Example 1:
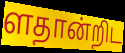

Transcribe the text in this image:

ளதான்றிட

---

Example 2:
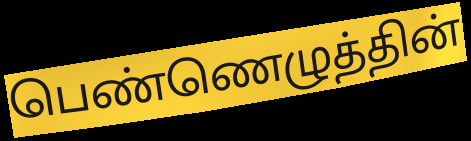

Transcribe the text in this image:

பெண்ணெழுத்தின்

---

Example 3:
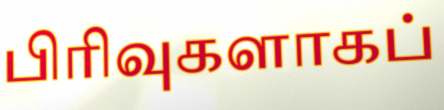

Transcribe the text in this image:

பிரிவுகளாகப்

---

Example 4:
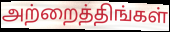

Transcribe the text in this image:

அற்றைத்திங்கள்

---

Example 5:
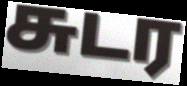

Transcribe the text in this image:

சுடர